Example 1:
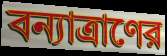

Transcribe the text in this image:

বন্যাত্রাণের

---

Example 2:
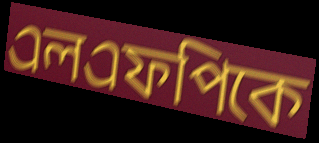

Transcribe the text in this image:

এলএফপিকে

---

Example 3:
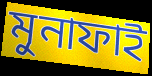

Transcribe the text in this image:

মুনাফাই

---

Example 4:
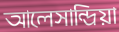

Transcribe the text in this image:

আলেসান্দ্রিয়া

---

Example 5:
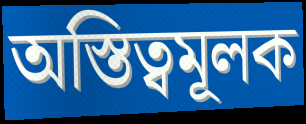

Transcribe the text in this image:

অস্তিত্বমূলক